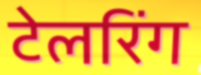
टेलरिंग